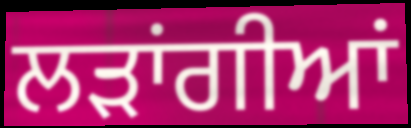
ਲੜਾਂਗੀਆਂ